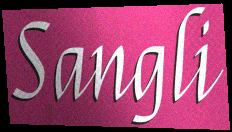
Sangli